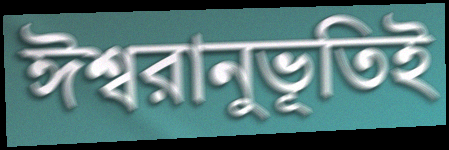
ঈশ্বরানুভূতিই